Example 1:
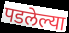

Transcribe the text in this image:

पडलेल्या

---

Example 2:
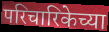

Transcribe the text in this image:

परिचारिकेच्या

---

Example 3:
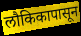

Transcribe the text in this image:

लौकिकापासून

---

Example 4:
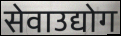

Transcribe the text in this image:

सेवाउद्योग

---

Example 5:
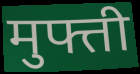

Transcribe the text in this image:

मुफ्ती